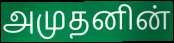
அமுதனின்